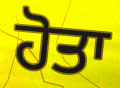
ਹੋਤਾ